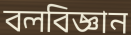
বলবিজ্ঞান